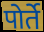
पोर्ते